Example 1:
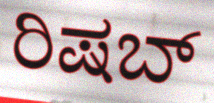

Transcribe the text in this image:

ರಿಷಬ್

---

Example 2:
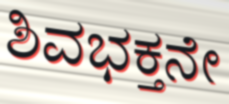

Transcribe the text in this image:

ಶಿವಭಕ್ತನೇ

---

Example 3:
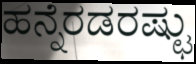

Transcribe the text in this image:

ಹನ್ನೆರಡರಷ್ಟು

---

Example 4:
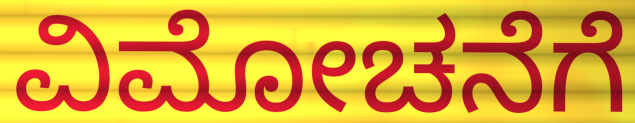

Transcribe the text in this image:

ವಿಮೋಚನೆಗೆ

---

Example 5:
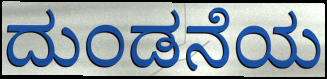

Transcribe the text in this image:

ದುಂಡನೆಯ